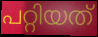
പറ്റിയത്